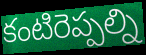
కంటిరెప్పల్ని